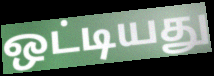
ஒட்டியது